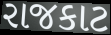
રાજકાટ